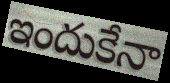
ఇందుకేనా